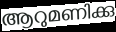
ആറുമണിക്കു